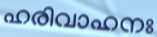
ഹരിവാഹനഃ